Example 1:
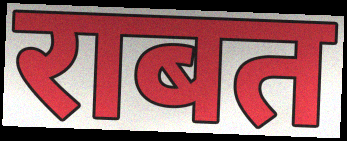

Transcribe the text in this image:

राबत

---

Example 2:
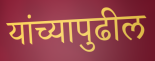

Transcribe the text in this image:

यांच्यापुढील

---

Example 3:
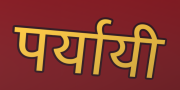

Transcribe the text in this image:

पर्यायी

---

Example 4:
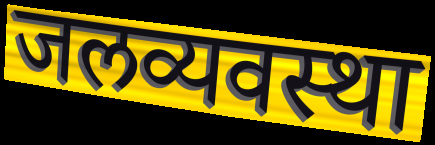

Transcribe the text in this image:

जलव्यवस्था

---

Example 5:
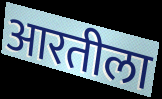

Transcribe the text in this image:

आरतीला